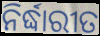
ନିର୍ଦ୍ଧାରୀତ